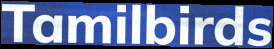
Tamilbirds